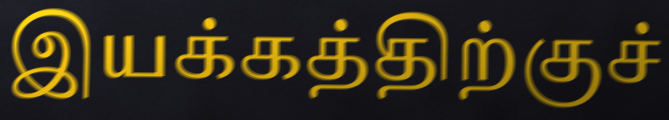
இயக்கத்திற்குச்